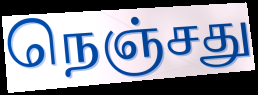
நெஞ்சது